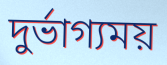
দুর্ভাগ্যময়